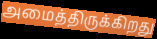
அமைத்திருக்கிறது